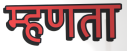
म्हणता